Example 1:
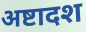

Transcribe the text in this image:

अष्टादश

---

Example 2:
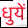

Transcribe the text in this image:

धुयें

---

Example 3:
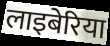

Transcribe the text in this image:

लाइबेरिया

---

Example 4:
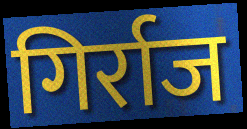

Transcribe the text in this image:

गिर्राज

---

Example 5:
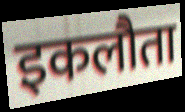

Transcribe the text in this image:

इकलौता